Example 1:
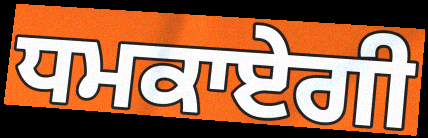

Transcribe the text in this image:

ਧਮਕਾਏਗੀ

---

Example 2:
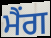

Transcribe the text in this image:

ਮੈਂਗ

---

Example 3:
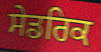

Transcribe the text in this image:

ਸੇਡਰਿਕ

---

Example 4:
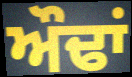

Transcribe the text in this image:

ਔਢਾਂ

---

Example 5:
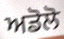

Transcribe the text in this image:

ਅਡੋਲੋ